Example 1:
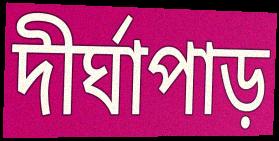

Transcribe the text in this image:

দীর্ঘাপাড়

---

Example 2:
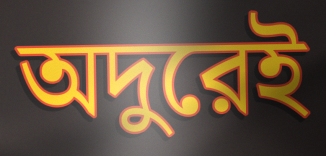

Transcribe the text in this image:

অদুরেই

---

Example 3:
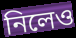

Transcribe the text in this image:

নিলেও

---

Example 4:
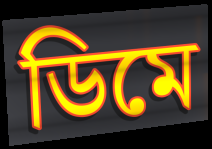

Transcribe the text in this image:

ডিমে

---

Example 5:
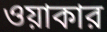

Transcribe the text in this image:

ওয়াকার